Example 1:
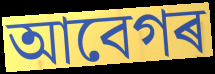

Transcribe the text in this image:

আবেগৰ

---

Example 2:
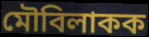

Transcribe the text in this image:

মৌবিলাকক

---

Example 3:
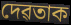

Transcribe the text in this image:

দেৱতাক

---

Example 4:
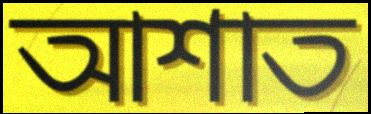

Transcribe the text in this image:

আশাত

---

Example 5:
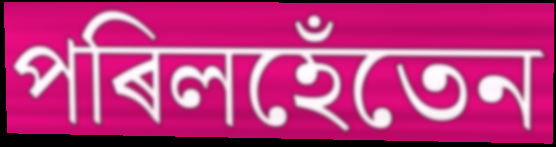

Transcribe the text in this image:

পৰিলহেঁতেন